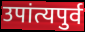
उपांत्यपुर्व